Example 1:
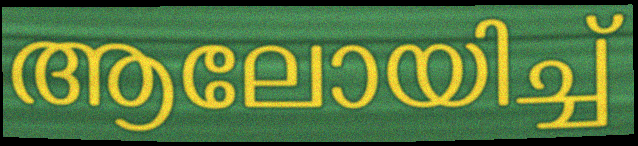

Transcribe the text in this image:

ആലോയിച്ച്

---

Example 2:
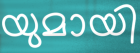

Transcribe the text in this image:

യുമായി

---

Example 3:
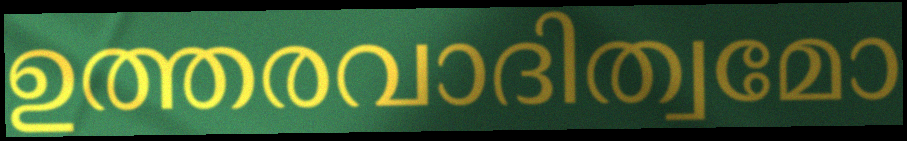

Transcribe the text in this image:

ഉത്തരവാദിത്വമോ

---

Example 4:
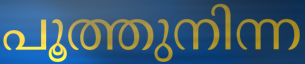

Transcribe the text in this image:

പൂത്തുനിന്ന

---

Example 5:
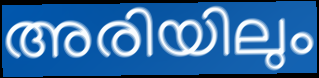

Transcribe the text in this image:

അരിയിലും